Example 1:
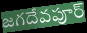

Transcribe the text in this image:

జగదేవపూర్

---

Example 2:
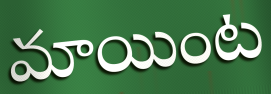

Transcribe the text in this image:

మాయింట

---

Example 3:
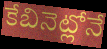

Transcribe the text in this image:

కేబినెట్లోనే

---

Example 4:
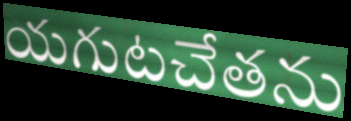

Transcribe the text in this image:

యగుటచేతను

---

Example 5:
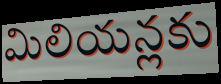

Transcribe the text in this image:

మిలియన్లకు